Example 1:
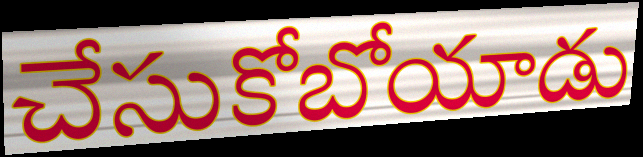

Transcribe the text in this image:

చేసుకోబోయాడు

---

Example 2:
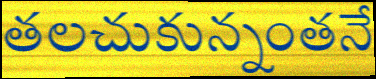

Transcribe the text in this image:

తలచుకున్నంతనే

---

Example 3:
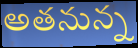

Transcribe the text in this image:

అతనున్న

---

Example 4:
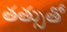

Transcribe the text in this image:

తత్సుతో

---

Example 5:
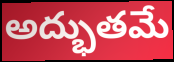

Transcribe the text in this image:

అద్భుతమే